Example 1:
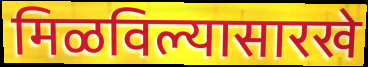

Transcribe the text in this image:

मिळविल्यासारखे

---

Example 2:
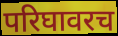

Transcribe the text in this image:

परिघावरच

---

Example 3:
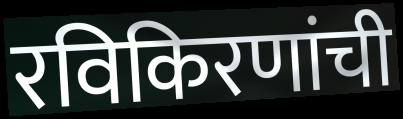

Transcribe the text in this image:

रविकिरणांची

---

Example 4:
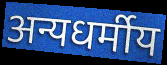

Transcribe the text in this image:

अन्यधर्मीय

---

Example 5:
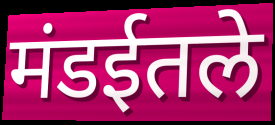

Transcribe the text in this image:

मंडईतले